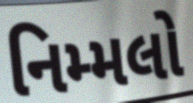
નિમ્મલો